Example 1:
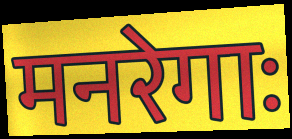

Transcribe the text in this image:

मनरेगाः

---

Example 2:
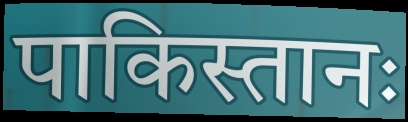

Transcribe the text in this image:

पाकिस्तानः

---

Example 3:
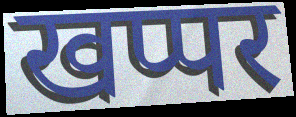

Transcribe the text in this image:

खप्पर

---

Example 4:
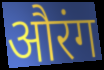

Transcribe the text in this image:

औरंग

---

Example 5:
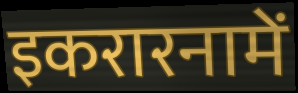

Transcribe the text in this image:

इकरारनामें